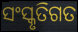
ସଂସ୍କୃତିଗତ